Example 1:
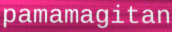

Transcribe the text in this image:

pamamagitan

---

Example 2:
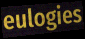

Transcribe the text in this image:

eulogies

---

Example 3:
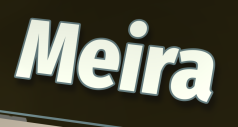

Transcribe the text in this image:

Meira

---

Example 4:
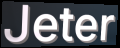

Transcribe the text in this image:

Jeter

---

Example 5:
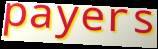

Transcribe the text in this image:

payers